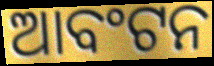
ଆବଂଟନ